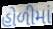
હોળીમાં